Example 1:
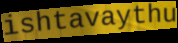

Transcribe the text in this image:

ishtavaythu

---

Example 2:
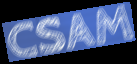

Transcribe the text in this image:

CSAM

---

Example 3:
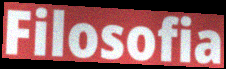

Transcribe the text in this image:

Filosofia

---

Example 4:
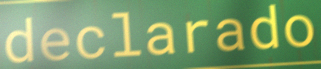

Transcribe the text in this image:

declarado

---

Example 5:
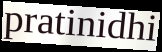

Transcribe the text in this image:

pratinidhi